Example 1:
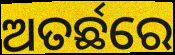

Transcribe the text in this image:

ଅତର୍ଛରେ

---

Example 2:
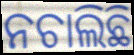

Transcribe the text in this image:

ନଚାଲିଛି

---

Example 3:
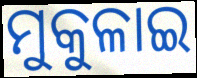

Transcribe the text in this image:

ମୁକୁଳାଇ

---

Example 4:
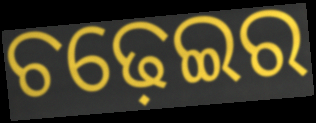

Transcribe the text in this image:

ଚଢ଼େଇର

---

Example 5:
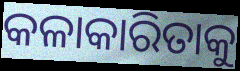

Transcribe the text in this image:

କଳାକାରିତାକୁ